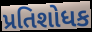
પ્રતિશોધક